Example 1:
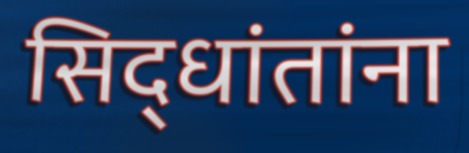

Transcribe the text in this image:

सिद्धांतांना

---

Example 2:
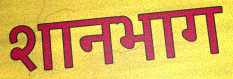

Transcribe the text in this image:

शानभाग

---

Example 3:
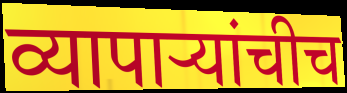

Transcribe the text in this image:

व्यापाऱ्यांचीच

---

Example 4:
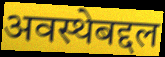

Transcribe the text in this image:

अवस्थेबद्दल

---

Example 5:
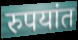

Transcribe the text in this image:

रुपयांत